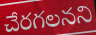
చేరగలనని